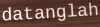
datanglah